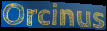
Orcinus